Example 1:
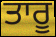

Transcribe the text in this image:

ਤਾਰੂ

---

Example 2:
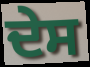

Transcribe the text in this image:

ਦੇਸ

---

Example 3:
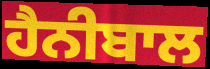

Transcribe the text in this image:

ਹੈਨੀਬਾਲ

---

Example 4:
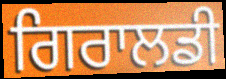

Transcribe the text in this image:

ਗਿਰਾਲਡੀ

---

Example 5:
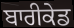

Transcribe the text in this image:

ਬਾਰੀਕੇਡ